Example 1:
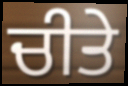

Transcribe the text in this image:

ਚੀਤੇ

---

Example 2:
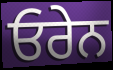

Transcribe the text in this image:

ਓਰੇਨ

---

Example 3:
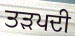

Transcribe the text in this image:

ਤੜਪਦੀ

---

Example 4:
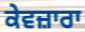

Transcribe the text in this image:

ਕੇਵਜ਼ਾਰਾ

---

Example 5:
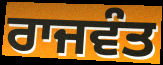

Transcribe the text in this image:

ਰਾਜਵੰਤ